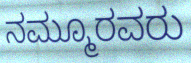
ನಮ್ಮೂರವರು